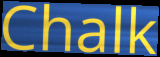
Chalk